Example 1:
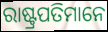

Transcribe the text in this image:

ରାଷ୍ଟ୍ରପତିମାନେ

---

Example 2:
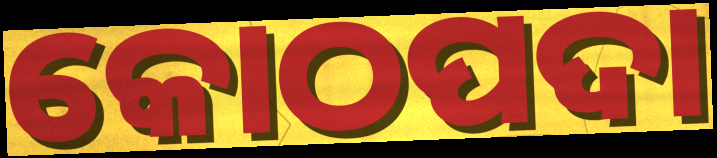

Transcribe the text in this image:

କୋଠପଦା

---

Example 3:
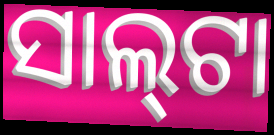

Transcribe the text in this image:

ସାଲ୍‌ଟା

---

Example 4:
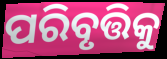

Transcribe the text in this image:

ପରିବୃତ୍ତିକୁ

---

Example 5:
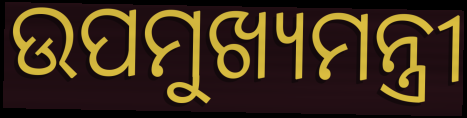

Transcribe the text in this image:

ଉପମୁଖ୍ୟମନ୍ତ୍ରୀ